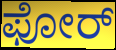
ಫೋರ್